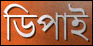
ডিপাই